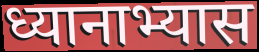
ध्यानाभ्यास